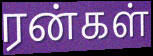
ரன்கள்